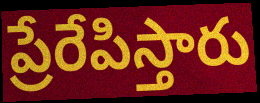
ప్రేరేపిస్తారు